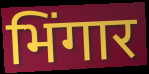
भिंगार